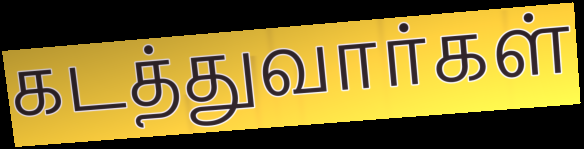
கடத்துவார்கள்